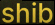
shib